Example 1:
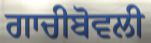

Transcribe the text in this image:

ਗਾਚੀਬੋਵਲੀ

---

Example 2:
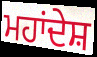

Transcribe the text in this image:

ਮਹਾਂਦੇਸ਼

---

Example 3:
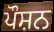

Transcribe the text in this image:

ਪੌਸ਼ਨ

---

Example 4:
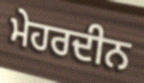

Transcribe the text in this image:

ਮੇਹਰਦੀਨ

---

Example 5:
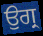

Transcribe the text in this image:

ਉਗ੍ਰ